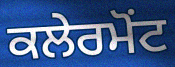
ਕਲੇਰਮੋਂਟ